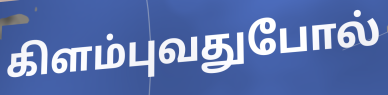
கிளம்புவதுபோல்